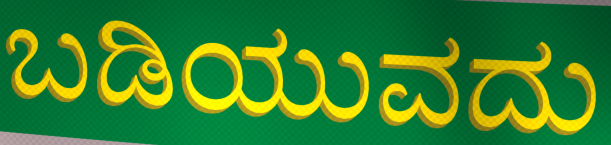
ಬಡಿಯುವದು